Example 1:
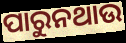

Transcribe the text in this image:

ପାରୁନଥାଉ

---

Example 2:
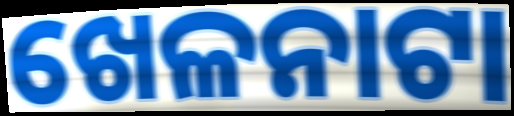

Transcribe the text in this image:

ଖେଳନାଟା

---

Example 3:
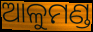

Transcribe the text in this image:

ଆଳୁମଣ୍ଡ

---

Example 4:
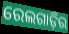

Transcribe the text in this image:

ରେଲଗାଡ଼ିର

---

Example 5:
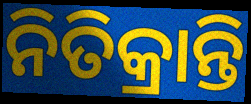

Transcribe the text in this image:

ନିତିକ୍ରାନ୍ତି